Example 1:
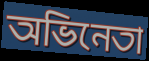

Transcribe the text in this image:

অভিনেতা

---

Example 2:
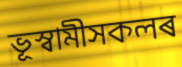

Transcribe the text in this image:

ভূস্বামীসকলৰ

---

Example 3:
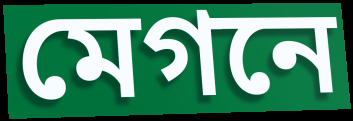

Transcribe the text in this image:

মেগনে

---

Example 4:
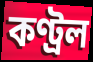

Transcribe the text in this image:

কণ্ট্ৰল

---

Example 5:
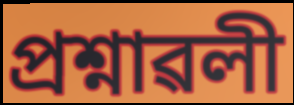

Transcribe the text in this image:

প্ৰশ্নাৱলী